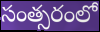
సంత్సరంలో